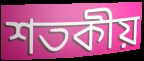
শতকীয়